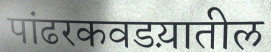
पांढरकवडय़ातील